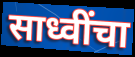
साध्वींचा